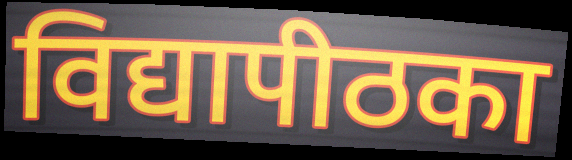
विद्यापीठका